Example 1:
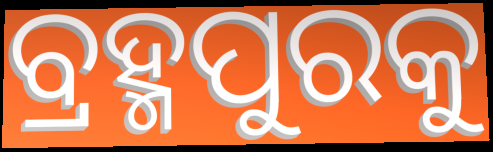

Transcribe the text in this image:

ବ୍ରହ୍ମପୁରକୁ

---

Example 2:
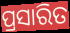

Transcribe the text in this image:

ପ୍ରସାରିତ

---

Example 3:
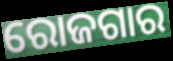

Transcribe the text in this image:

ରୋଜଗାର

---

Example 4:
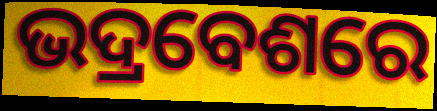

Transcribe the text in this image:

ଭଦ୍ରବେଶରେ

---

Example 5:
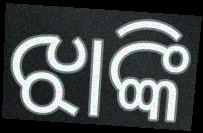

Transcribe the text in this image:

ଝାଙ୍କି